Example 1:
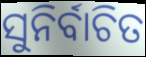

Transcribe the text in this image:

ସୁନିର୍ବାଚିତ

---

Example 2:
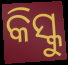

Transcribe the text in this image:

କିସ୍କୁ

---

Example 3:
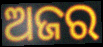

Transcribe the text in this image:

ଅଜର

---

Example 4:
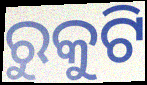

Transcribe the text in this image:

ରୁକୁଟି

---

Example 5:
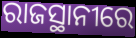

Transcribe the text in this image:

ରାଜସ୍ଥାନୀରେ